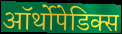
ऑर्थोपेडिक्स